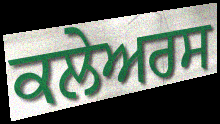
ਕਲੇਅਰਸ